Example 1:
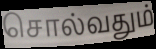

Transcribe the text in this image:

சொல்வதும்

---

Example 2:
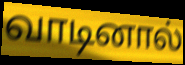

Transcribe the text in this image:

வாடினால்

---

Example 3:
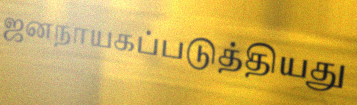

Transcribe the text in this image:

ஜனநாயகப்படுத்தியது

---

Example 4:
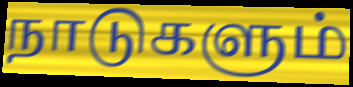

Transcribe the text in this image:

நாடுகளும்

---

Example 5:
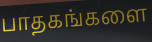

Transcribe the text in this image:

பாதகங்களை